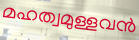
മഹത്വമുള്ളവൻ